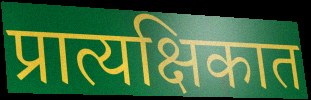
प्रात्यक्षिकात